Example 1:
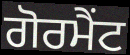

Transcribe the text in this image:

ਗੋਰਮੈਂਟ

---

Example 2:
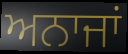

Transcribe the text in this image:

ਅਨਾਜਾਂ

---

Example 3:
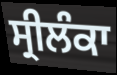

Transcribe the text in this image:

ਸ੍ਰੀਲੰਕਾ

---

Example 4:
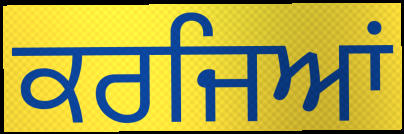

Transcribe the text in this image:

ਕਰਜਿਆਂ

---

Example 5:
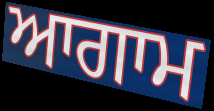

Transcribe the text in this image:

ਆਗਾਮ